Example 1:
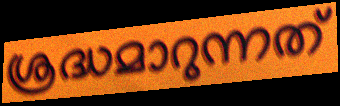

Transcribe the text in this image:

ശ്രദ്ധമാറുന്നത്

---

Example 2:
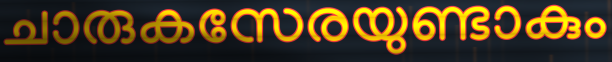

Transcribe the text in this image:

ചാരുകസേരയുണ്ടാകും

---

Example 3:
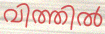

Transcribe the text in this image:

വിത്തിൽ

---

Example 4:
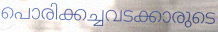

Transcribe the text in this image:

പൊരിക്കച്ചവടക്കാരുടെ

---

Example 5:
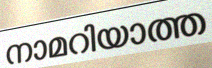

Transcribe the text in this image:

നാമറിയാത്ത